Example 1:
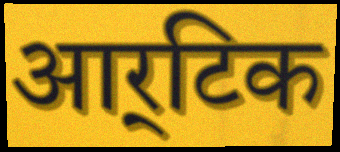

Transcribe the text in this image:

आर्टिक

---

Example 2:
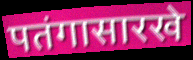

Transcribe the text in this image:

पतंगासारखे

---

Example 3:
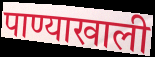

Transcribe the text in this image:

पाण्‍याखाली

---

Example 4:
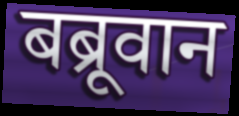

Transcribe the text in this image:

बब्रूवान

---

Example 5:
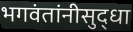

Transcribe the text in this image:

भगवंतांनीसुद्धा